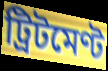
ট্ৰিটমেণ্ট